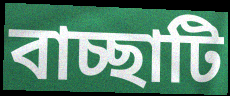
বাচ্ছাটি